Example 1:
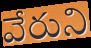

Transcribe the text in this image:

వేరుని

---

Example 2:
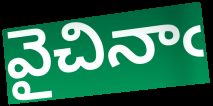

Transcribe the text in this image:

వైచినాఁ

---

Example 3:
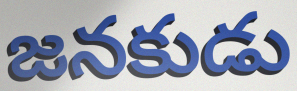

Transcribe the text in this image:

జనకుడు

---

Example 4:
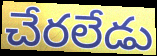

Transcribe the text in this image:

చేరలేడు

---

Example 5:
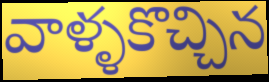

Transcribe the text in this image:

వాళ్ళకొచ్చిన